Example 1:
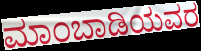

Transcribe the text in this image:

ಮಾಂಬಾಡಿಯವರ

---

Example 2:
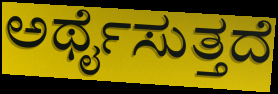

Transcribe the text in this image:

ಅರ್ಥೈಸುತ್ತದೆ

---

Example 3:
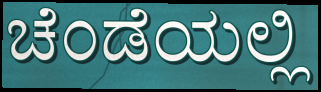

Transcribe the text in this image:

ಚೆಂಡೆಯಲ್ಲಿ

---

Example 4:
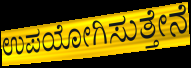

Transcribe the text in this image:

ಉಪಯೋಗಿಸುತ್ತೇನೆ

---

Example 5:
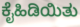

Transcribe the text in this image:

ಕೈಹಿಡಿಯಿತು